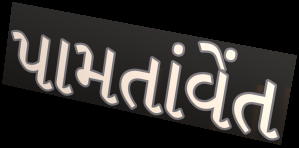
પામતાંવેંત